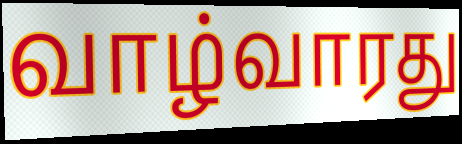
வாழ்வாரது